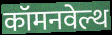
कॉमनवेल्थ